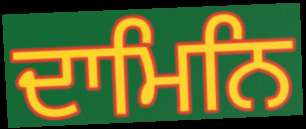
ਦਾਮਿਨਿ